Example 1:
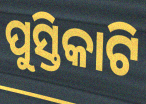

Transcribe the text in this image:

ପୁସ୍ତିକାଟି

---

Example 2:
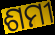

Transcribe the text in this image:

ଶମୀ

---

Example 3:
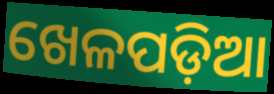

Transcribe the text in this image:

ଖେଳପଡ଼ିଆ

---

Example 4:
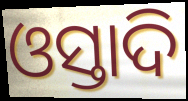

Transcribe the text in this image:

ଓସ୍ତାଦି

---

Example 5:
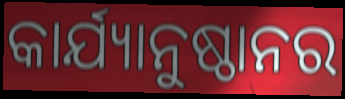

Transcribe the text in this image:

କାର୍ଯ୍ୟାନୁଷ୍ଠାନର